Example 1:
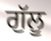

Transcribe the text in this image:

ਗੁੱਲੂ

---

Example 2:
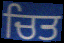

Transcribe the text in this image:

ਚਿਤ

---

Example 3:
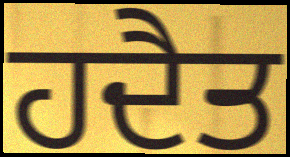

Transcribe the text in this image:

ਹਦੈਤ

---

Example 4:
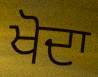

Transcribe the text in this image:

ਖੋਦਾ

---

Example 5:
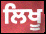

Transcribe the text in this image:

ਲਿਖੂ